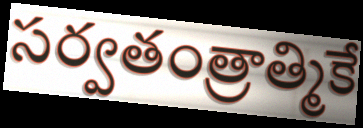
సర్వతంత్రాత్మికే